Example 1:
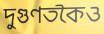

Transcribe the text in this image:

দুগুণতকৈও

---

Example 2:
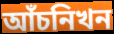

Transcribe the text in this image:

আঁচনিখন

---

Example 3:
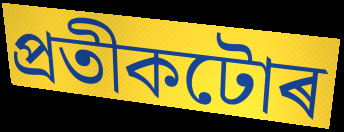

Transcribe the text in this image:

প্ৰতীকটোৰ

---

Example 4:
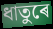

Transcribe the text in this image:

ধাতুৰে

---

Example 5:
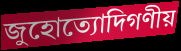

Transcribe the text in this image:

জুহোত্যোদিগণীয়